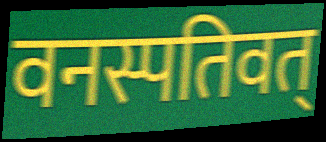
वनस्पतिवत्